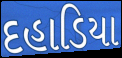
દહાડિયા